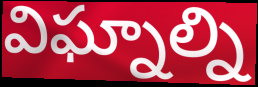
విఘ్నాల్ని